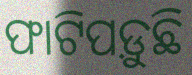
ଫାଟିପଡ଼ୁଛି